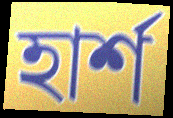
হার্শ